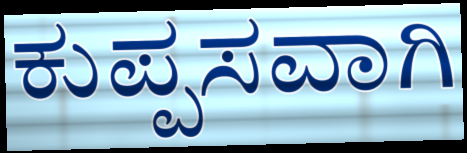
ಕುಪ್ಪಸವಾಗಿ